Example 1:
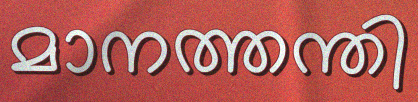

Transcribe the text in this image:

മാനത്തന്തി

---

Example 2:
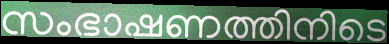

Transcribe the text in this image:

സംഭാഷണത്തിനിടെ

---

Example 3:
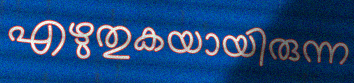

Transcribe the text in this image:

എഴുതുകയായിരുന്ന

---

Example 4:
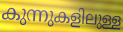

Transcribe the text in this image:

കുന്നുകളിലുള്ള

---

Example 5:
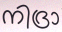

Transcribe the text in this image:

നിദ്രാ